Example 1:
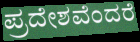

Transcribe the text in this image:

ಪ್ರದೇಶವೆಂದರೆ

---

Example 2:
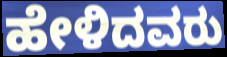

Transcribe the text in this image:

ಹೇಳಿದವರು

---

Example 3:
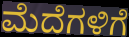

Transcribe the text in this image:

ಮೆದೆಗಳಿಗೆ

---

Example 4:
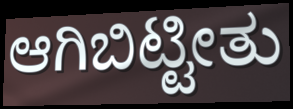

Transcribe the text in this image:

ಆಗಿಬಿಟ್ಟೀತು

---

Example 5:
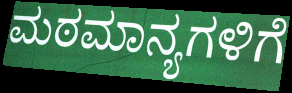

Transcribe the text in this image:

ಮಠಮಾನ್ಯಗಳಿಗೆ